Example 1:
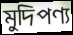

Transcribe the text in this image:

মুদিপণ্য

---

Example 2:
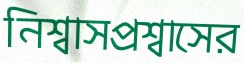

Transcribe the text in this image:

নিশ্বাসপ্রশ্বাসের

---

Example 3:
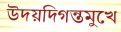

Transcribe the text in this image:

উদয়দিগন্তমুখে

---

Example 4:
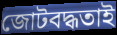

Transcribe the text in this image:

জোটবদ্ধতাই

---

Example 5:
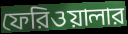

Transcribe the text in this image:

ফেরিওয়ালার